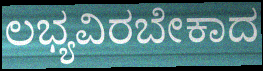
ಲಭ್ಯವಿರಬೇಕಾದ